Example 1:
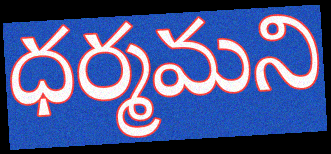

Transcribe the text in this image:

ధర్మమని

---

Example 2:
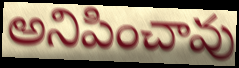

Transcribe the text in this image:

అనిపించావు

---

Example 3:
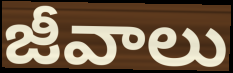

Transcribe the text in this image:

జీవాలు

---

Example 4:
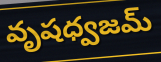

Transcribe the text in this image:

వృషధ్వజమ్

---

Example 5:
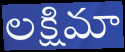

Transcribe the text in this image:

లక్షిమా